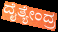
ದೈತ್ಯೇಂದ್ರ